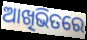
ଆଖିଭିତରେ